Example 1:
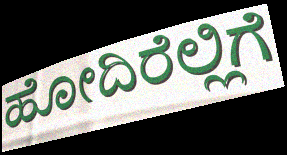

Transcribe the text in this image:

ಹೋದಿರೆಲ್ಲಿಗೆ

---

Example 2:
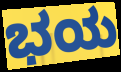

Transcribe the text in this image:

ಭಯ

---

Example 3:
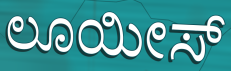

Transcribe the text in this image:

ಲೂಯೀಸ್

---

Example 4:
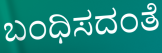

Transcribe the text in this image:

ಬಂಧಿಸದಂತೆ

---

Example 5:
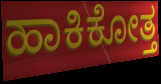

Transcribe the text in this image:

ಹಾಕಿಕೋತ್ತ